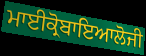
ਮਾਈਕ੍ਰੋਬਾਇਆਲੋਜੀ